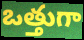
ఒత్తుగా